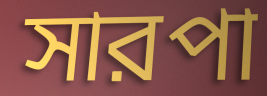
সারপা